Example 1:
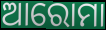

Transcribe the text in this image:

ଆରୋମା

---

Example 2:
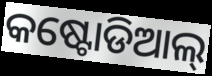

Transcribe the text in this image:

କଷ୍ଟୋଡିଆଲ୍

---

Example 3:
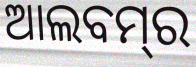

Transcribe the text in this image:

ଆଲବମ୍‌ର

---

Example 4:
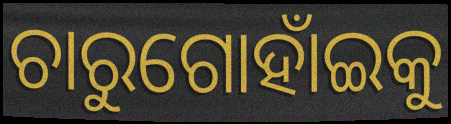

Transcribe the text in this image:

ଚାରୁଗୋହାଁଇକୁ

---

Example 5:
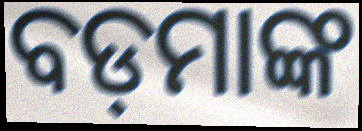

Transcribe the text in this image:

ବଡ଼ମାଙ୍କ